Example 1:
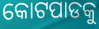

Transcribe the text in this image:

କୋଟପାଡକୁ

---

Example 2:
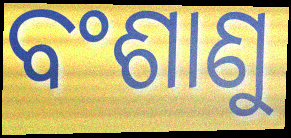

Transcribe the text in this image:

ବଂଶାଣୁ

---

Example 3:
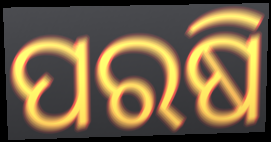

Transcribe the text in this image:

ପରଷି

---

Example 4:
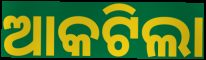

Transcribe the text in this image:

ଆକଟିଲା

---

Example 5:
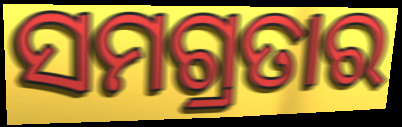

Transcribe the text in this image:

ସମଗ୍ରତାର